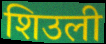
शिउली